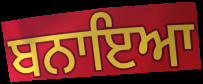
ਬਨਾਇਆ